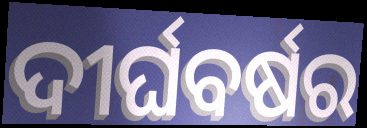
ଦୀର୍ଘବର୍ଷର